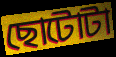
ছোটোটা